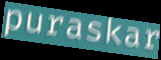
puraskar